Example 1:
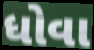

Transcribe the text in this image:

ધોવા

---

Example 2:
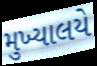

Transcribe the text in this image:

મુખ્યાલયે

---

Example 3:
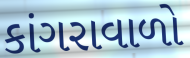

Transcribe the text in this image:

કાંગરાવાળો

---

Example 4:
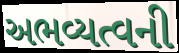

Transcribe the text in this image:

અભવ્યત્વની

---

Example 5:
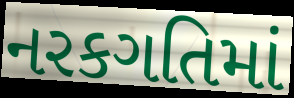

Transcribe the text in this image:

નરકગતિમાં